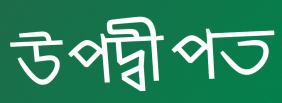
উপদ্বীপত